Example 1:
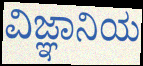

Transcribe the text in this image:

ವಿಜ್ಞಾನಿಯ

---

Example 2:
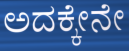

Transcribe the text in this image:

ಅದಕ್ಕೇನೇ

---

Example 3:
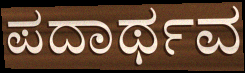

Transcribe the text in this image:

ಪದಾರ್ಥವ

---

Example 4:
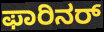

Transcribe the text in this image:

ಫಾರಿನರ್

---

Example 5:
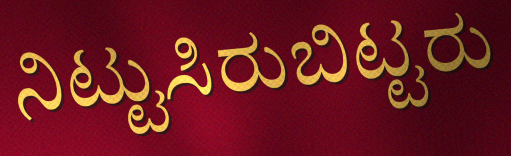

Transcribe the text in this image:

ನಿಟ್ಟುಸಿರುಬಿಟ್ಟರು